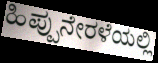
ಹಿಪ್ಪುನೇರಳೆಯಲ್ಲಿ